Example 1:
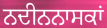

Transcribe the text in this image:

ਨਦੀਨਨਾਸਕਾਂ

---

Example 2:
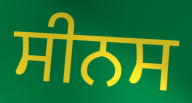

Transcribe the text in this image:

ਸੀਨਸ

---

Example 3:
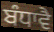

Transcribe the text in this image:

ਬੰਧਾਵੈ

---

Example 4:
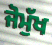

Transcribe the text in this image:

ਜੋਮੁੱਖ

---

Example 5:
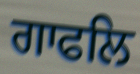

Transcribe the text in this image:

ਗਾਫਲਿ